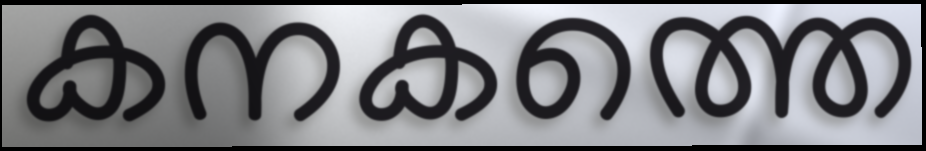
കനകത്തെ